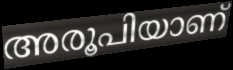
അരൂപിയാണ്